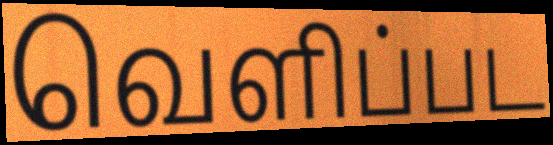
வெளிப்பட